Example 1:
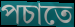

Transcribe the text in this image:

পচাতে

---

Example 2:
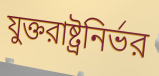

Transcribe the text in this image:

যুক্তরাষ্ট্রনির্ভর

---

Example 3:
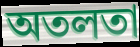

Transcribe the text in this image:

অতলতা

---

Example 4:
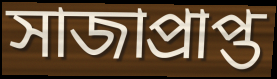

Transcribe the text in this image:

সাজাপ্রাপ্ত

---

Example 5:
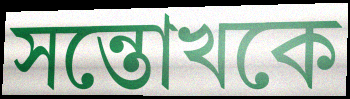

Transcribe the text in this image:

সন্তোখকে